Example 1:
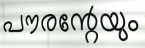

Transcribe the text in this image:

പൗരന്റേയും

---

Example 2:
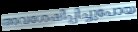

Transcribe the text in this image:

അവശേഷിപ്പിച്ചുപോയ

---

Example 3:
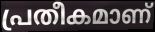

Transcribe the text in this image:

പ്രതീകമാണ്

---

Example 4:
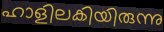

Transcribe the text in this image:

ഹാളിലകിയിരുന്നു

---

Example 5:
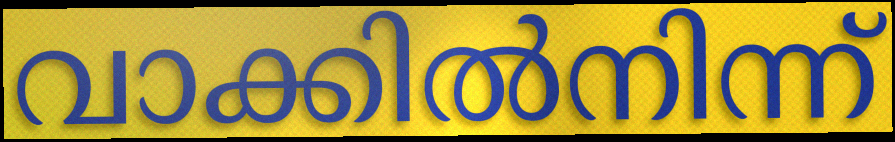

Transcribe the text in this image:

വാക്കിൽനിന്ന്